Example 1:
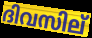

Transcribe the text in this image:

ദിവസില്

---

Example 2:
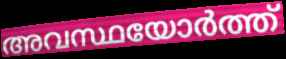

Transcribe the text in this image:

അവസ്ഥയോർത്ത്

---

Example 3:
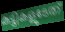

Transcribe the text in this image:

കുട്ടികളുടേത്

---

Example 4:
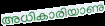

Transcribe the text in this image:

അധികാരിയാണു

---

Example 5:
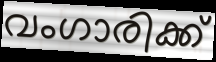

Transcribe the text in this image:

വംഗാരിക്ക്